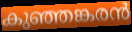
കുഞ്ഞങ്കരൻ